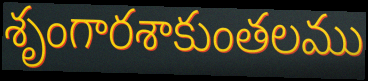
శృంగారశాకుంతలము